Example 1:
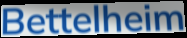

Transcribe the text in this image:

Bettelheim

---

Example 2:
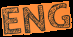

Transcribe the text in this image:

ENG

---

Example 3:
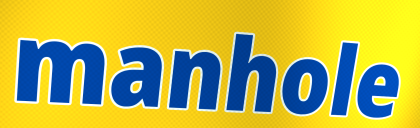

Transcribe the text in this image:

manhole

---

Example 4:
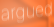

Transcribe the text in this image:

argued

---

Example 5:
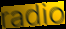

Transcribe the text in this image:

radio